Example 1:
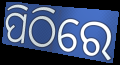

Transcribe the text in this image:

ପିଠିରେ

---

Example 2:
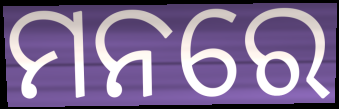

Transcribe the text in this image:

ମନରେ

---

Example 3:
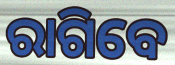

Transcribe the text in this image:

ରାଗିବେ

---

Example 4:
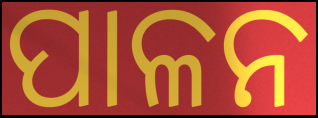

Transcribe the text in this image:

ପାଳନ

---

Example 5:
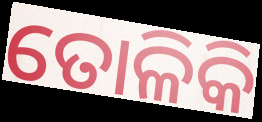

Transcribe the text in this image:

ତୋଳିକି